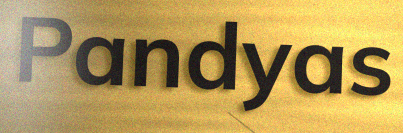
Pandyas